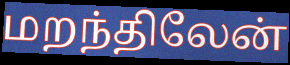
மறந்திலேன்